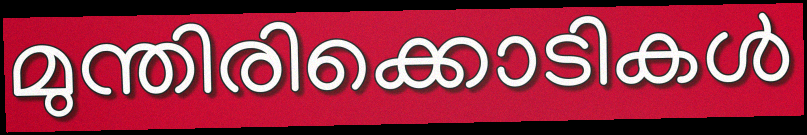
മുന്തിരിക്കൊടികൾ